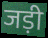
जड़ी